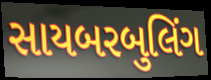
સાયબરબુલિંગ